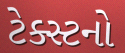
ટેક્સ્ટનો